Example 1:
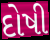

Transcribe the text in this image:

દોષી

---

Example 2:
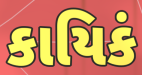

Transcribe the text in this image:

કાયિકં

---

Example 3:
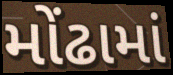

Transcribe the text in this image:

મોંઢામાં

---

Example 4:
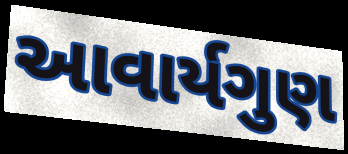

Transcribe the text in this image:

આવાર્યગુણ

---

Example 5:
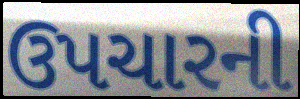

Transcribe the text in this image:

ઉપચારની